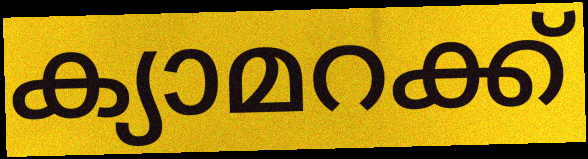
ക്യാമറക്ക്